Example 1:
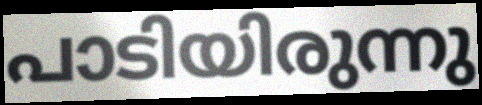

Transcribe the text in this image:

പാടിയിരുന്നു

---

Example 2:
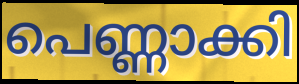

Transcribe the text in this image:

പെണ്ണാക്കി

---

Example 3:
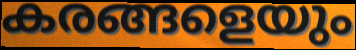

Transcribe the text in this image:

കരങ്ങളെയും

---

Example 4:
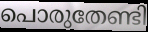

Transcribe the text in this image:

പൊരുതേണ്ടി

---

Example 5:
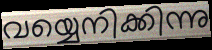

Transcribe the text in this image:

വയ്യെനിക്കിന്നു